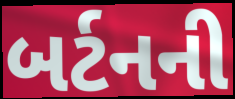
બર્ટનની